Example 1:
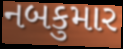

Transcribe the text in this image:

નબકુમાર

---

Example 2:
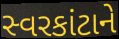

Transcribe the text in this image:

સ્વરકાંટાને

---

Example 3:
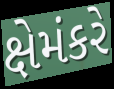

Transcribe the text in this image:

ક્ષેમંકરે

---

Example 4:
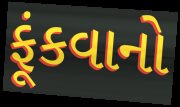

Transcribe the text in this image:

ફૂંકવાનો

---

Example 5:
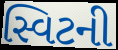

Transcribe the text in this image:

સ્વિટની